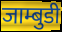
जाम्बुडी